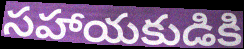
సహాయకుడికి